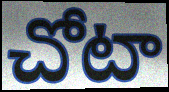
చోటా